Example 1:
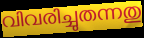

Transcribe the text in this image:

വിവരിച്ചുതന്നതു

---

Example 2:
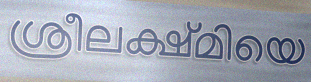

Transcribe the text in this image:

ശ്രീലക്ഷ്മിയെ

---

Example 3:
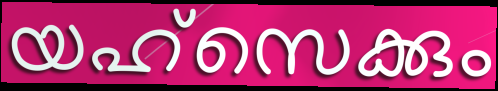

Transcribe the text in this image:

യഹ്സെക്കും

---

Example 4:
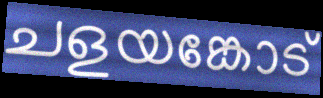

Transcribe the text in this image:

ചളയങ്കോട്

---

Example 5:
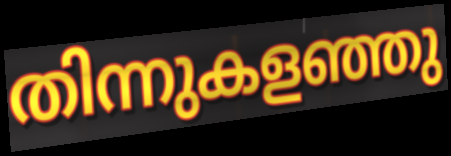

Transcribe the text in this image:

തിന്നുകളഞ്ഞു